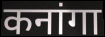
कनांगा